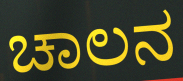
ಚಾಲನ